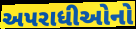
અપરાધીઓનો